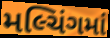
મલ્ચિંગમાં